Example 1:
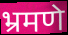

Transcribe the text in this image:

भ्रमणे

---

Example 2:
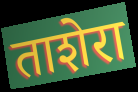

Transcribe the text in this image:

ताशेरा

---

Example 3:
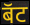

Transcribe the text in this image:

बॅट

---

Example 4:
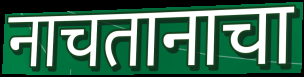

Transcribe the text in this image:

नाचतानाचा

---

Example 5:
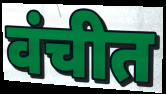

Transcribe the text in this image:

वंचीत